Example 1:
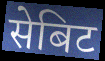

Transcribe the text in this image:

सेबिट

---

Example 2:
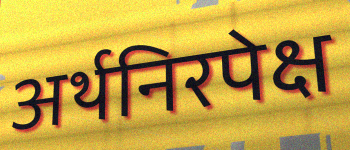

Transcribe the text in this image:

अर्थनिरपेक्ष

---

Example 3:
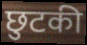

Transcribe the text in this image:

छुटकी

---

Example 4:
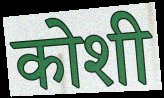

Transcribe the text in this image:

कोशी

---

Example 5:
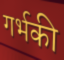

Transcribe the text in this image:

गर्भकी